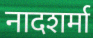
नादशर्मा